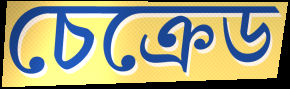
চেক্ৰেড